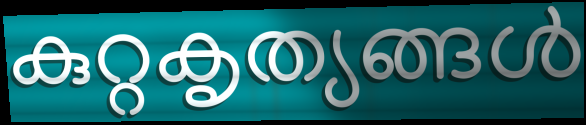
കുറ്റകൃത്യങ്ങൾ